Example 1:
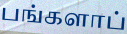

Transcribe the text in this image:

பங்களாப்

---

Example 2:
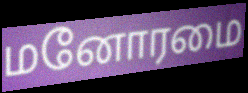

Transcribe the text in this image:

மனோரமை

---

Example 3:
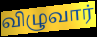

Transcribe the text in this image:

விழுவார்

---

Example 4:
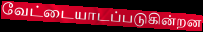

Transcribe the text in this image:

வேட்டையாடப்படுகின்றன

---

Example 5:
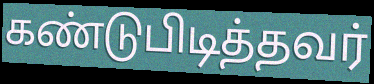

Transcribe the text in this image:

கண்டுபிடித்தவர்